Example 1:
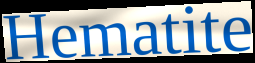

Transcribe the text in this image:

Hematite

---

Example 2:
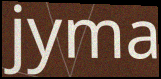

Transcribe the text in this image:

jyma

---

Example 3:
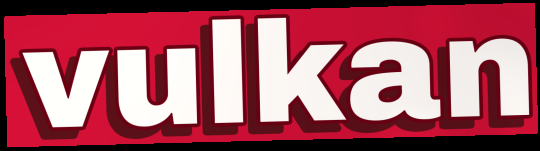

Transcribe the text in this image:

vulkan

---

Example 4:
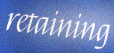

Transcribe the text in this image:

retaining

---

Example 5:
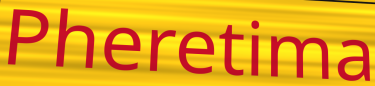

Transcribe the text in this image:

Pheretima